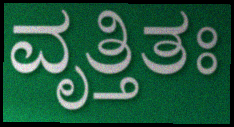
ವೃತ್ತಿತಃ